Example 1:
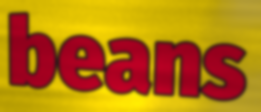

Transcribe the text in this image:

beans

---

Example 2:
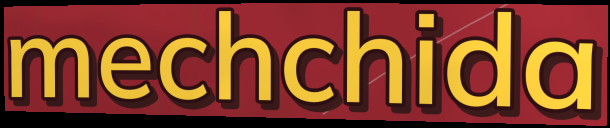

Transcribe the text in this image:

mechchida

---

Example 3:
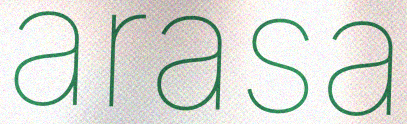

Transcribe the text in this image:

arasa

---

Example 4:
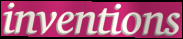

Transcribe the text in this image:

inventions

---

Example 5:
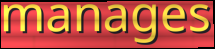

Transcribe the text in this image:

manages